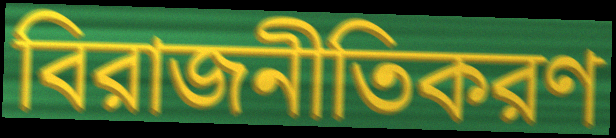
বিরাজনীতিকরণ